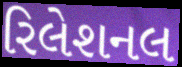
રિલેશનલ